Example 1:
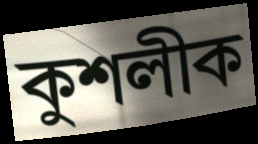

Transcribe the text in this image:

কুশলীক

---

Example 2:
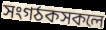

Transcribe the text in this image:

সংগঠকসকলে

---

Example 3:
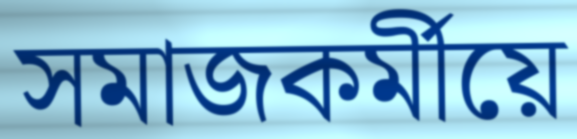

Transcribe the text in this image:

সমাজকৰ্মীয়ে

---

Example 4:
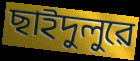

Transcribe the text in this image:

ছাইদুলুৱে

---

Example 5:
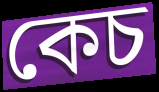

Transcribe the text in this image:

কেচ